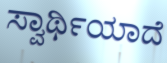
ಸ್ವಾರ್ಥಿಯಾದೆ